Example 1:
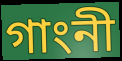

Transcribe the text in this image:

গাংনী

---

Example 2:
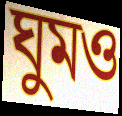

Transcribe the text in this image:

ঘুমও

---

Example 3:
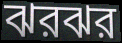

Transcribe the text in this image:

ঝরঝর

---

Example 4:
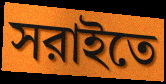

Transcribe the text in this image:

সরাইতে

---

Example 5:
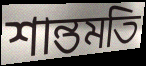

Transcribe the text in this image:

শান্তমতি